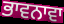
ਭਾਵਨਾਵਾ